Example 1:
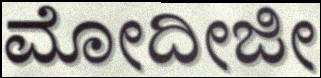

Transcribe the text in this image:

ಮೋದೀಜೀ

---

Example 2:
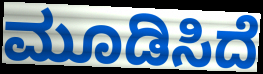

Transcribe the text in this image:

ಮೂಡಿಸಿದೆ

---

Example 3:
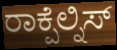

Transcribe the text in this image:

ರಾಕ್ಪೆಲ್ನಿಸ್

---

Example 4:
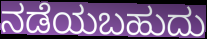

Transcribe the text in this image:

ನಡೆಯಬಹುದು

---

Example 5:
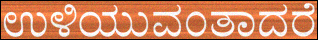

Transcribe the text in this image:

ಉಳಿಯುವಂತಾದರೆ